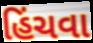
હિંચવા